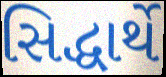
સિદ્ધાર્થે